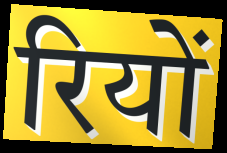
रियों